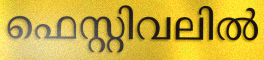
ഫെസ്റ്റിവലിൽ